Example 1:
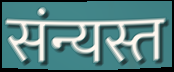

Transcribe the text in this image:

संन्यस्त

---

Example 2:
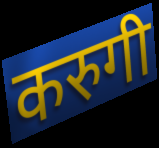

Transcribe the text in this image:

करुगी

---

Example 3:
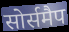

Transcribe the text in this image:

सोर्समैप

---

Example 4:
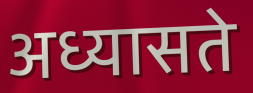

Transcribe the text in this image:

अध्यासते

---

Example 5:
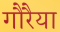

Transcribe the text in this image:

गौरैया